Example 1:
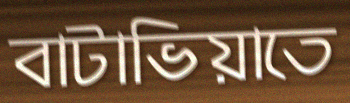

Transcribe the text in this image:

বাটাভিয়াতে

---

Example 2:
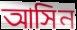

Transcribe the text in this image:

আসিন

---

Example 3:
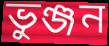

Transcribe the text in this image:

ভুঞ্জন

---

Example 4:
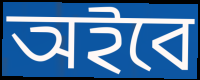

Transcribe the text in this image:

অইবে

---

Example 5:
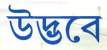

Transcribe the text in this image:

উদ্ভবে